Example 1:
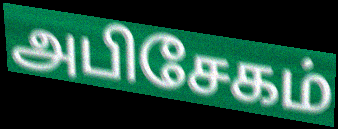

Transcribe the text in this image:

அபிசேகம்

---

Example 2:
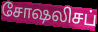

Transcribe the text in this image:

சோஷலிசப்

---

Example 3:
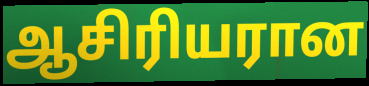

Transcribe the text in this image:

ஆசிரியரான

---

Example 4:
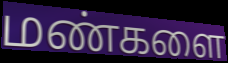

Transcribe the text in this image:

மண்களை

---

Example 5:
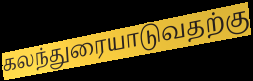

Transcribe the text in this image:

கலந்துரையாடுவதற்கு